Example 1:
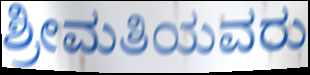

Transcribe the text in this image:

ಶ್ರೀಮತಿಯವರು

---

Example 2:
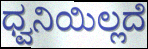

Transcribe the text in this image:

ಧ್ವನಿಯಿಲ್ಲದೆ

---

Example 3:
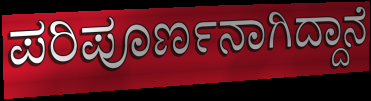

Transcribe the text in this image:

ಪರಿಪೂರ್ಣನಾಗಿದ್ದಾನೆ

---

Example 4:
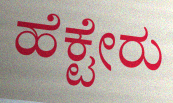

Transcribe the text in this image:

ಹೆಕ್ಟೇರು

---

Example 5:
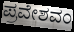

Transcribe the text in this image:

ಪ್ರವೇಶವಂ